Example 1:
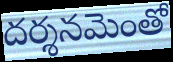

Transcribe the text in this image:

దర్శనమెంతో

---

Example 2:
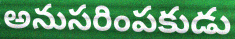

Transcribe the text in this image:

అనుసరింపకుడు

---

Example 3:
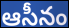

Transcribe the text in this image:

ఆసీనం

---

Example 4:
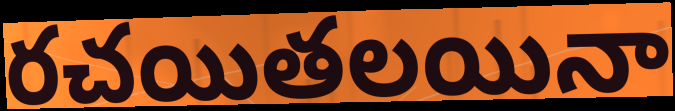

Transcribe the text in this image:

రచయితలయినా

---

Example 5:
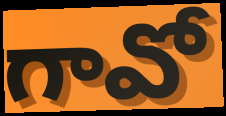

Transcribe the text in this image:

గావో